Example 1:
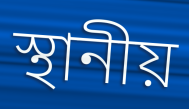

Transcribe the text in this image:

স্থানীয়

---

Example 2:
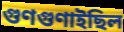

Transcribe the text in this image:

গুণগুণাইছিল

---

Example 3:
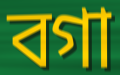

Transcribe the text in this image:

বগা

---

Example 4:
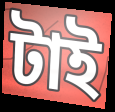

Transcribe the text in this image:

টাই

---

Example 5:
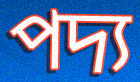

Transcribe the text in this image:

পদ্য